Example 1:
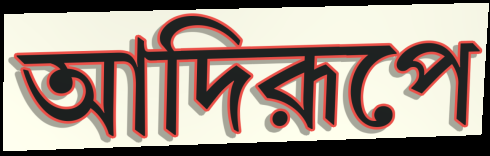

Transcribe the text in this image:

আদিরূপে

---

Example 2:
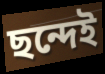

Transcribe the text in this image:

ছন্দেই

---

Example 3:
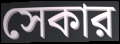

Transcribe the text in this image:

সেকার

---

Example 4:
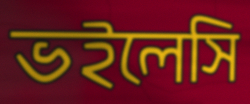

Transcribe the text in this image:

ভইলেসি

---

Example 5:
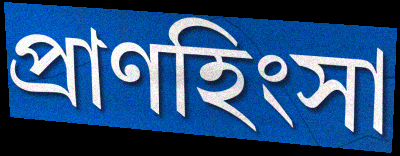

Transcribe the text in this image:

প্রাণহিংসা